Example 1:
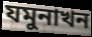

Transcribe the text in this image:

যমুনাখন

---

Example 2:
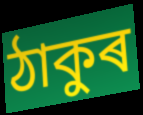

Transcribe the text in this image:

ঠাকুৰ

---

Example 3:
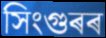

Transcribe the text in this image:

সিংগুৰৰ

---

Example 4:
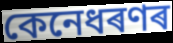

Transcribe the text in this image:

কেনেধৰণৰ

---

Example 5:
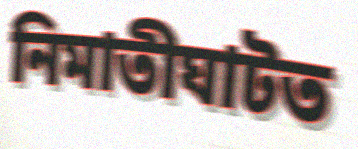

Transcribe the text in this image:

নিমাতীঘাটত